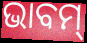
ଭାବମ୍